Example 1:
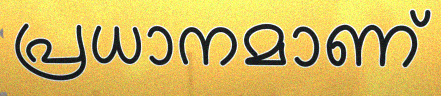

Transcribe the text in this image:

പ്രധാനമാണ്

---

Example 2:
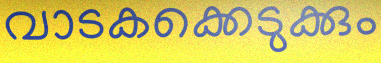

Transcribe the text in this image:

വാടകക്കെടുക്കും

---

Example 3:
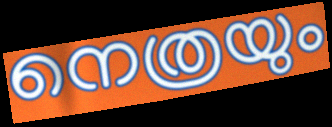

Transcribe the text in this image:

നെത്രയും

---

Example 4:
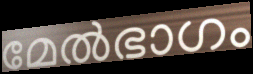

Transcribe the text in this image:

മേൽഭാഗം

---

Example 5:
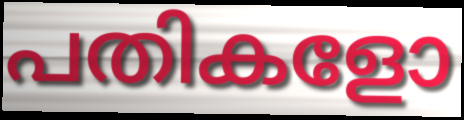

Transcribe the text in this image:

പതികളോ